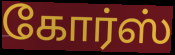
கோர்ஸ்